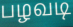
பழவடி